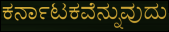
ಕರ್ನಾಟಕವೆನ್ನುವುದು